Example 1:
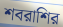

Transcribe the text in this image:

শবরাশির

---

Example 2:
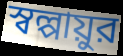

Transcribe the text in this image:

স্বল্পায়ুর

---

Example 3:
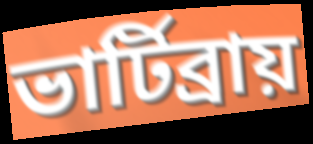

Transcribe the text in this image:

ভার্টিব্রায়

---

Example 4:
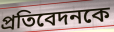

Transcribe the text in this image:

প্রতিবেদনকে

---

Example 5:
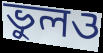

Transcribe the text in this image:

ভুলও